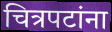
चित्रपटांना